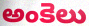
అంకెలు